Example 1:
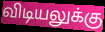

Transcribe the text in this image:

விடியலுக்கு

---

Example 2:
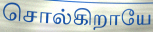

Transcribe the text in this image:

சொல்கிறாயே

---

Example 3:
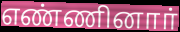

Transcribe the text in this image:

எண்ணினார்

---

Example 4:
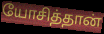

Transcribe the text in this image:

யோசித்தான்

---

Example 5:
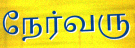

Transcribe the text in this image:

நேர்வரு